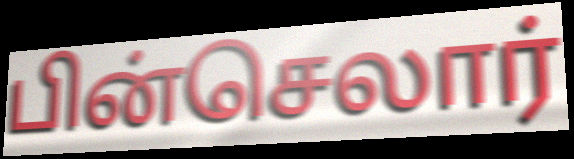
பின்செலார்